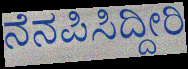
ನೆನಪಿಸಿದ್ದೀರಿ